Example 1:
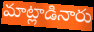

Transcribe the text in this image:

మాట్లాడినారు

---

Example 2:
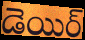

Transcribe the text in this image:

డెయిర్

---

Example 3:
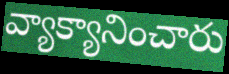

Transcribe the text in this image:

వ్యాక్యానించారు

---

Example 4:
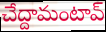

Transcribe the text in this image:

చేద్దామంటావ్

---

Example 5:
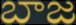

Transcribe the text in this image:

బాజ